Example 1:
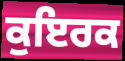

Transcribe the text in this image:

ਕੁਇਰਕ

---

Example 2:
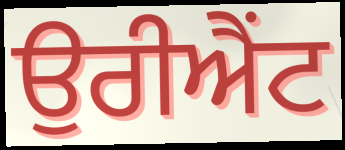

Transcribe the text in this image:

ਉਰੀਐਂਟ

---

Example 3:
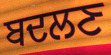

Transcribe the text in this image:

ਬਦਲਣ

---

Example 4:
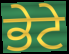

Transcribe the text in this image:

ਭੇਟੇ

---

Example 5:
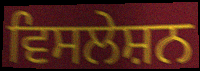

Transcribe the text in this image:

ਵਿਸਲੇਸ਼ਨ